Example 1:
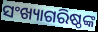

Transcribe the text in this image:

ସଂଖ୍ୟାଗରିଷ୍ଠଙ୍କ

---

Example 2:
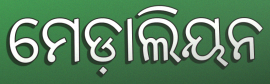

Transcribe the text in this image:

ମେଡ଼ାଲିୟନ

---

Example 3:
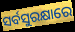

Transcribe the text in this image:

ସର୍ବସୁରକ୍ଷାରେ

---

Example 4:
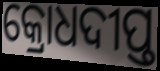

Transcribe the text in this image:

କ୍ରୋଧଦୀପ୍ତ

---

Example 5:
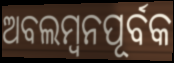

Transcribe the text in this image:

ଅବଲମ୍ୱନପୂର୍ବକ